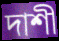
দাশী